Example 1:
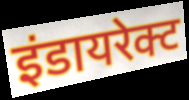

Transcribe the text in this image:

इंडायरेक्ट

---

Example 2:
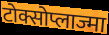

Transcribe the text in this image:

टोक्सोप्लाज्मा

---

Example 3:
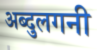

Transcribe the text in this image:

अब्दुलगनी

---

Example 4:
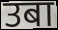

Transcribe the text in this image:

उबा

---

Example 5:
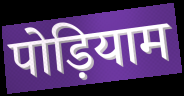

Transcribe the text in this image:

पोड़ियाम